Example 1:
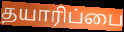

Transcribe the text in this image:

தயாரிப்பை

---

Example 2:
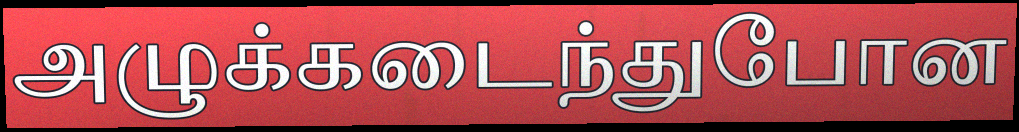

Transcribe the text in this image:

அழுக்கடைந்துபோன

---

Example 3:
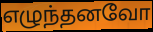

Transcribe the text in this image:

எழுந்தனவோ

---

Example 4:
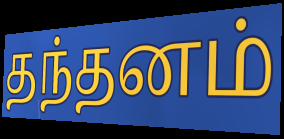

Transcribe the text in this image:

தந்தனம்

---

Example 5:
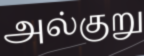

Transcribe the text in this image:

அல்குறு